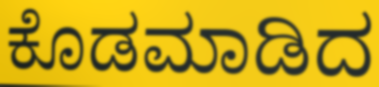
ಕೊಡಮಾಡಿದ